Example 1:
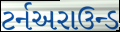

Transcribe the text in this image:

ટર્નઅરાઉન્ડ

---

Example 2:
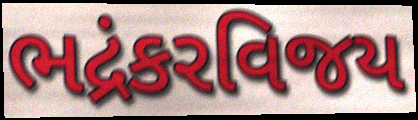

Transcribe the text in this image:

ભદ્રંકરવિજય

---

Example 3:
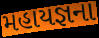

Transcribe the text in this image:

મહાયજ્ઞના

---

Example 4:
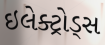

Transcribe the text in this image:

ઇલેક્ટ્રોડ્સ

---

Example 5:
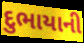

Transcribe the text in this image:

દુભાયાની